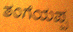
ತಂಗೆಯಪ್ಪ